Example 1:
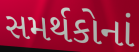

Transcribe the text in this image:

સમર્થકોનાં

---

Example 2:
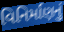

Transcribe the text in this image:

વિનિર્માણનું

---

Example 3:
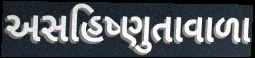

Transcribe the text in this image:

અસહિષ્ણુતાવાળા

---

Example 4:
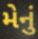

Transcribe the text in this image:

મેનું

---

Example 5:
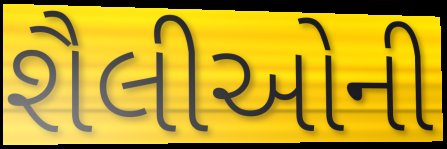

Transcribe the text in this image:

શૈલીઓની